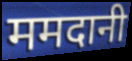
ममदानी